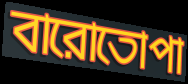
বারোতোপা